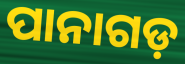
ପାନାଗଡ଼